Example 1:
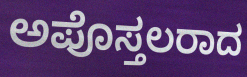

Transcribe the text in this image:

ಅಪೊಸ್ತಲರಾದ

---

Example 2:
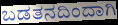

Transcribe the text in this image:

ಬಡತನದಿಂದಾಗಿ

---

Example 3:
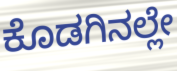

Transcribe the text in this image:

ಕೊಡಗಿನಲ್ಲೇ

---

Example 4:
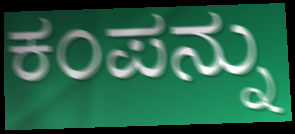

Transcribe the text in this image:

ಕಂಪನ್ನು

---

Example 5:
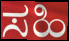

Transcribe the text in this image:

ಸಹಿ